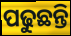
ପଢୁଛନ୍ତି